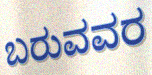
ಬರುವವರ